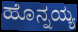
ಹೊನ್ನಯ್ಯ